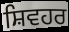
ਸ਼ਿਵਹਰ